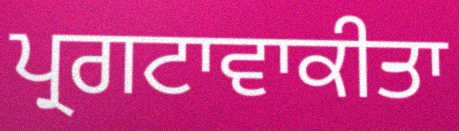
ਪ੍ਰਗਟਾਵਾਕੀਤਾ